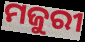
ମଜୁରୀ